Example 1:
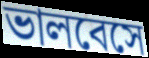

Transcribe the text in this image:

ভালবেসে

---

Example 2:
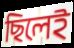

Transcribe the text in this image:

ছিলেই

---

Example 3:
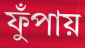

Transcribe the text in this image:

ফুঁপায়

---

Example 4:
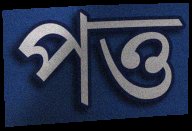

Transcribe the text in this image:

পত্ত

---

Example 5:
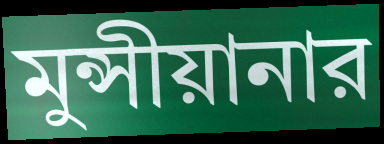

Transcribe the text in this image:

মুন্সীয়ানার